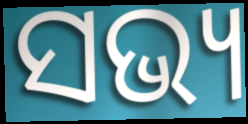
ସଭ୍ୟ